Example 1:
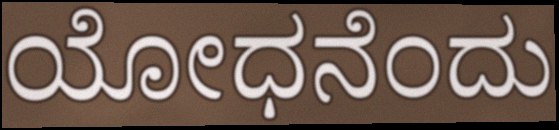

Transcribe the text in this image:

ಯೋಧನೆಂದು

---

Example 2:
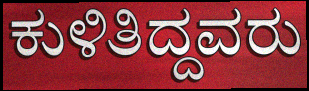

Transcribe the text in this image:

ಕುಳಿತಿದ್ದವರು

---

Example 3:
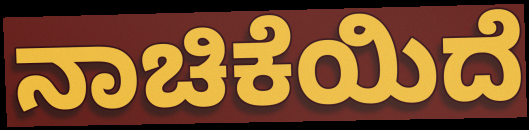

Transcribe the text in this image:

ನಾಚಿಕೆಯಿದೆ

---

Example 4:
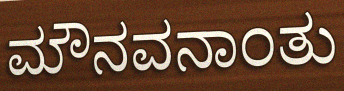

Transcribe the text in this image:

ಮೌನವನಾಂತು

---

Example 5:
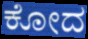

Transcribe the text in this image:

ಕೋದ